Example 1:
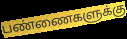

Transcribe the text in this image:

பண்ணைகளுக்கு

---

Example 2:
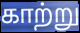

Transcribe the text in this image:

காற்று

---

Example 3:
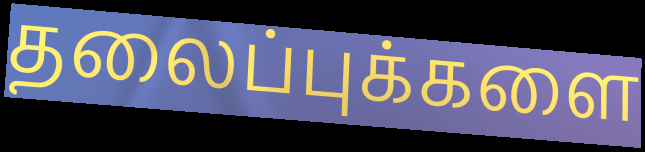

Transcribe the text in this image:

தலைப்புக்களை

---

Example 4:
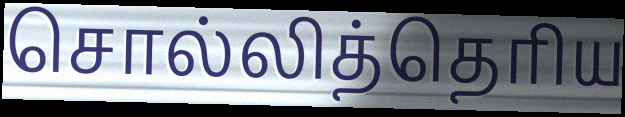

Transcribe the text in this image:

சொல்லித்தெரிய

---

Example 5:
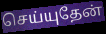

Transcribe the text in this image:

செய்யுதேன்